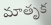
మాతృక